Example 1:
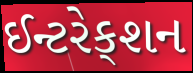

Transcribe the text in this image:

ઈન્ટરેક્‌શન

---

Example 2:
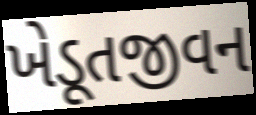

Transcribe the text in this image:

ખેડૂતજીવન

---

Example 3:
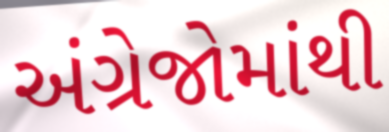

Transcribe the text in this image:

અંગ્રેજોમાંથી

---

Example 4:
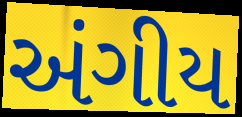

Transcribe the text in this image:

અંગીય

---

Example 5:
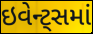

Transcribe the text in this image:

ઇવેન્ટ્સમાં